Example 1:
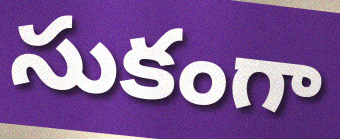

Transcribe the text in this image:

సుకంగా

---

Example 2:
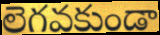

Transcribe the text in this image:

లెగవకుండా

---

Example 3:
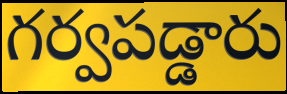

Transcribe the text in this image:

గర్వపడ్డారు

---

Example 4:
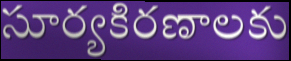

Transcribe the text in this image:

సూర్యకిరణాలకు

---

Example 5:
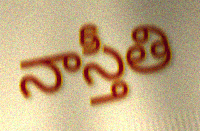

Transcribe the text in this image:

నాస్తీతి